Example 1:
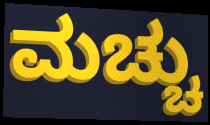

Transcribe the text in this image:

ಮಚ್ಚು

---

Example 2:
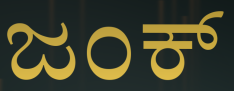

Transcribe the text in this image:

ಜಂಕ್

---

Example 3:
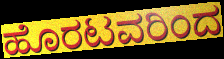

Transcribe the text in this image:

ಹೊರಟವರಿಂದ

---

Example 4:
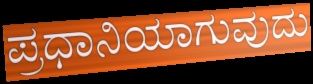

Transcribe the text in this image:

ಪ್ರಧಾನಿಯಾಗುವುದು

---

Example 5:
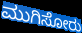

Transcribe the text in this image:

ಮುಗಿಸೋರು